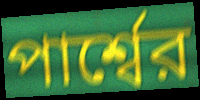
পার্শ্বের